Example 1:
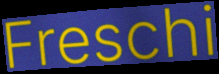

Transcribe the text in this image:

Freschi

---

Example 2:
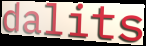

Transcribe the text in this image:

dalits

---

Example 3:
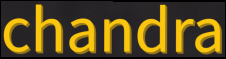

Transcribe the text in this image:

chandra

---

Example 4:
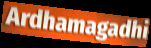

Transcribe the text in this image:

Ardhamagadhi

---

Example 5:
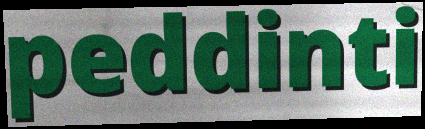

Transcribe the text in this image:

peddinti